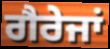
ਗੈਰੇਜਾਂ